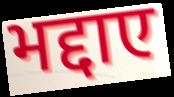
भद्दाए